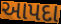
આપદા